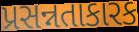
પ્રસન્નતાકારક